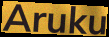
Aruku